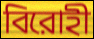
বিরোহী